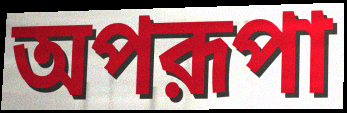
অপরূপা